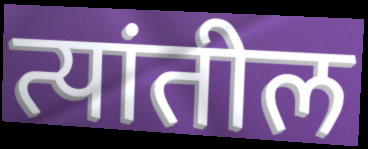
त्यांतील